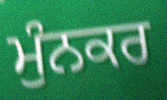
ਮੁੰਨਕਰ